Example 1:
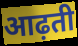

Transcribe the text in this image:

आढ़ती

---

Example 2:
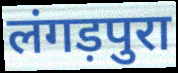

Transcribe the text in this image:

लंगड़पुरा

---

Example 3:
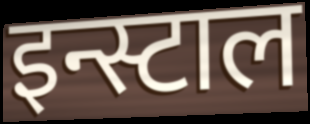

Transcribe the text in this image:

इन्स्टाल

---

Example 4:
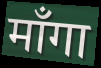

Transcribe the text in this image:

माँगा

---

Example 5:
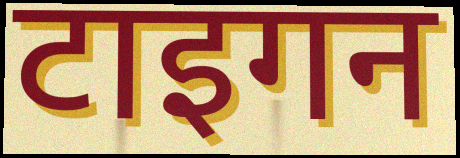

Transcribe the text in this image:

टाइगन